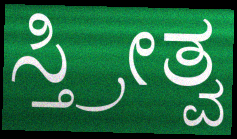
ಸ್ತ್ರೀತ್ವ